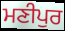
ਮਣੀਪੁਰ